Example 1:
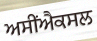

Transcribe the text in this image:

ਅਸੀਂਐਕਸਲ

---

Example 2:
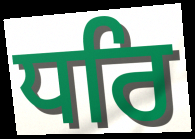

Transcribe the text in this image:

ਧਰਿ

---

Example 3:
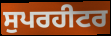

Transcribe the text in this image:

ਸੁਪਰਹੀਟਰ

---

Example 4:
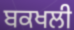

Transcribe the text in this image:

ਬਕਖਲੀ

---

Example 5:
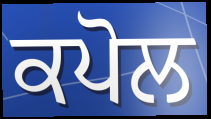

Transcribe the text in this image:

ਕਪੋਲ